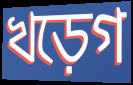
খড়েগ